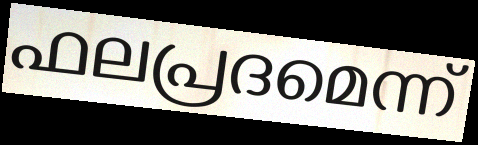
ഫലപ്രദമെന്ന്